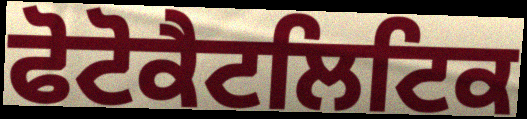
ਫੋਟੋਕੈਟਲਿਟਿਕ